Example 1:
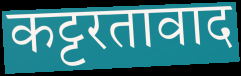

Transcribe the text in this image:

कट्टरतावाद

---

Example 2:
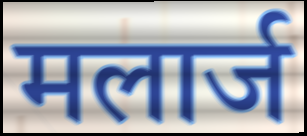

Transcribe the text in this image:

मलार्ज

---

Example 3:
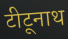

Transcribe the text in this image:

टीटूनाथ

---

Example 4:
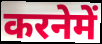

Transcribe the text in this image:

करनेमें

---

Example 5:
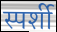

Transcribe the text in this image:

स्पर्शी